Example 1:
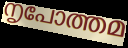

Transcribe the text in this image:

നൃപോത്തമ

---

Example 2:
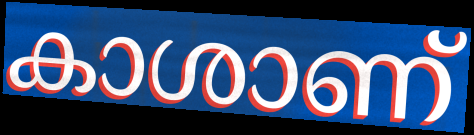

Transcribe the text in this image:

കാശാണ്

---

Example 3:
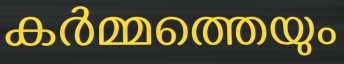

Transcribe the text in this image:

കർമ്മത്തെയും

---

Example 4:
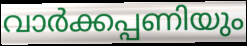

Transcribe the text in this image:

വാർക്കപ്പണിയും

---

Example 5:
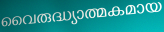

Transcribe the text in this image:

വൈരുദ്ധ്യാത്മകമായ